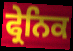
ਫ੍ਰੇਨਿਕ